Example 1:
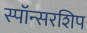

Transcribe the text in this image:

स्पॉन्सरशिप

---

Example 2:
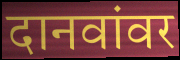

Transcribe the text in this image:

दानवांवर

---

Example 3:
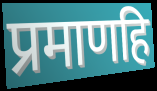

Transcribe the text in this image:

प्रमाणहि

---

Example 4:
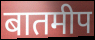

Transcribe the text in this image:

बातमीप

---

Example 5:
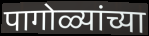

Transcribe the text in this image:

पागोळ्यांच्या